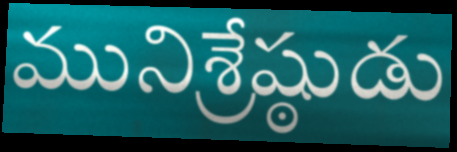
మునిశ్రేష్ఠుడు